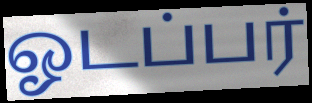
ஓடப்பர்